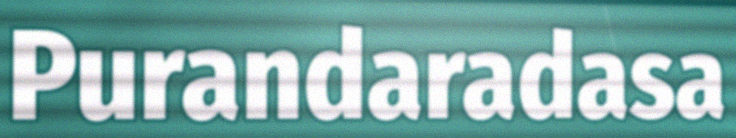
Purandaradasa